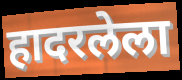
हादरलेला